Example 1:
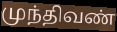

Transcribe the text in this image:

முந்திவண்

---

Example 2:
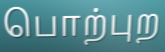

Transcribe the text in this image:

பொற்புற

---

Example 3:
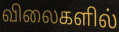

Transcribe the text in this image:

விலைகளில்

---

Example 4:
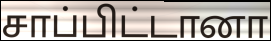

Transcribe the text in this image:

சாப்பிட்டானா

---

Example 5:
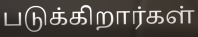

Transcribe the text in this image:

படுக்கிறார்கள்